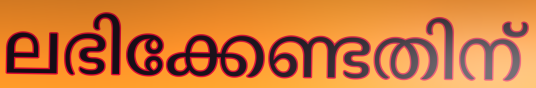
ലഭിക്കേണ്ടതിന്